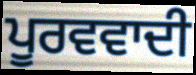
ਪੂਰਵਵਾਦੀ